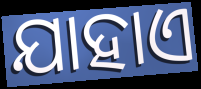
ଯାହାଏ